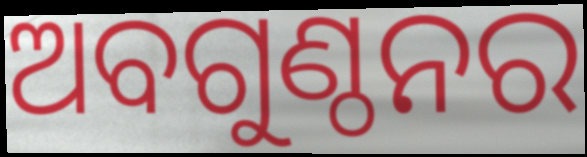
ଅବଗୁଣ୍ଠନର